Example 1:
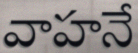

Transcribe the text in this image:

వాహనే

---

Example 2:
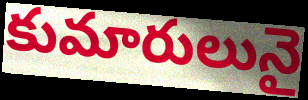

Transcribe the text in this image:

కుమారులునై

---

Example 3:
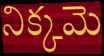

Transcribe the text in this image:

నిక్కమె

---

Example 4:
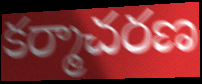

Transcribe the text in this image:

కర్మాచరణ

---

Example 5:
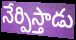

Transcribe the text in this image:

నేర్పిస్తాడు